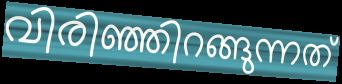
വിരിഞ്ഞിറങ്ങുന്നത്